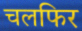
चलफिर